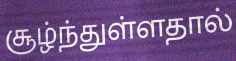
சூழ்ந்துள்ளதால்